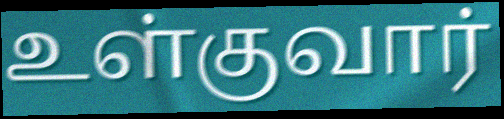
உள்குவார்